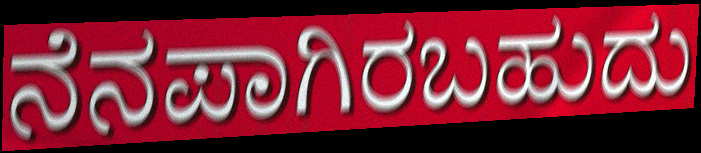
ನೆನಪಾಗಿರಬಹುದು